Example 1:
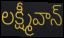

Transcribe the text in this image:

లక్ష్మీవాన్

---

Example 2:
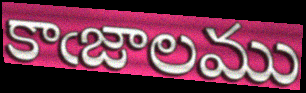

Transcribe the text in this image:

కాఁజాలము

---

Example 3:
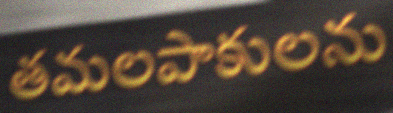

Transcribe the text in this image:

తమలపాకులను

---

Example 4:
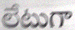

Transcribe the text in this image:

లేటుగా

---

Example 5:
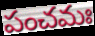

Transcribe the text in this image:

పంచమః